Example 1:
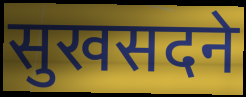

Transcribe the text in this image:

सुखसदने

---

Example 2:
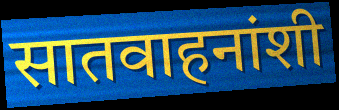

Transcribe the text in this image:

सातवाहनांशी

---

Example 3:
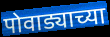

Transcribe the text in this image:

पोवाड्याच्या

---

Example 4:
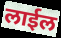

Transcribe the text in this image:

लाईल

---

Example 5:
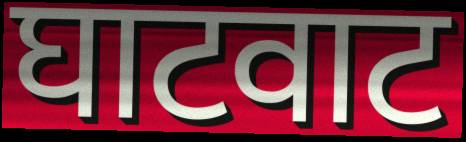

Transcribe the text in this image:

घाटवाट